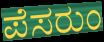
ಪೆಸರುಂ